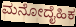
ಮನೋದೈಹಿಕ